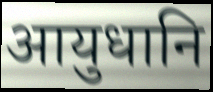
आयुधानि